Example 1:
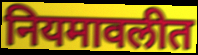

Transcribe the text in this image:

नियमावलीत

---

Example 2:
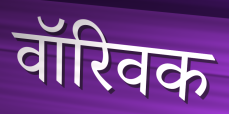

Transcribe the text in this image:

वॉरिवक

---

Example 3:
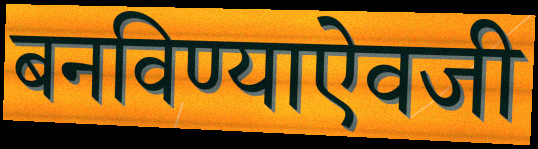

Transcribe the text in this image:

बनविण्याऐवजी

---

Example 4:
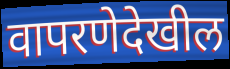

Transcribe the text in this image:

वापरणेदेखील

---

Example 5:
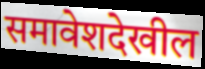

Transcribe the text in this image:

समावेशदेखील